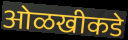
ओळखीकडे